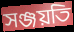
সঞ্জয়তি